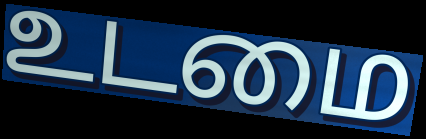
உடமை